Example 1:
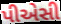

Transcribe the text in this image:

પીએસી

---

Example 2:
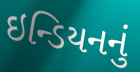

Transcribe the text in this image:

ઇન્ડિયનનું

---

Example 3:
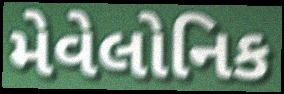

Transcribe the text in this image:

મેવેલોનિક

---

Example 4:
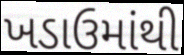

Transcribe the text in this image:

ખડાઉમાંથી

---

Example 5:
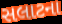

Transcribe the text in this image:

સલાટના